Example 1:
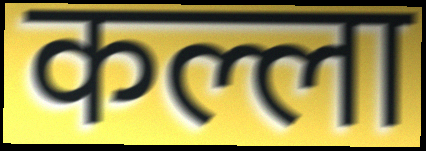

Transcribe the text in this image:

कल्ला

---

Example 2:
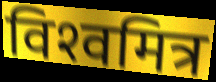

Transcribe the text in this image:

विश्वमित्र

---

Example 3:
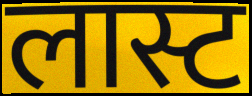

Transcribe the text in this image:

लास्ट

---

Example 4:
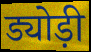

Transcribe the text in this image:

ड्योड़ी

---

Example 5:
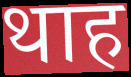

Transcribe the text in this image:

थाह